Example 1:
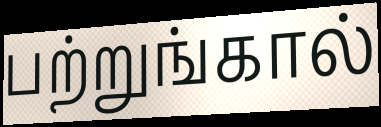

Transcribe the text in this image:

பற்றுங்கால்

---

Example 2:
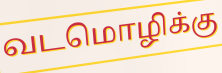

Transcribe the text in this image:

வடமொழிக்கு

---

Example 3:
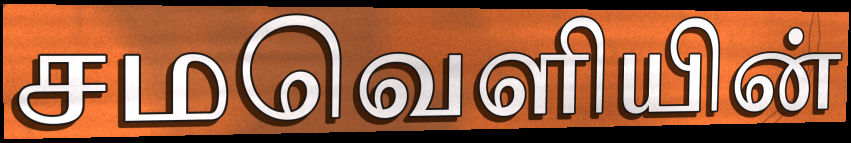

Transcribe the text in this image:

சமவெளியின்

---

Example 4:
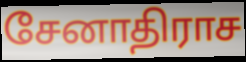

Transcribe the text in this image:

சேனாதிராச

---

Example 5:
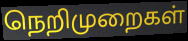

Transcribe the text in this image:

நெறிமுறைகள்